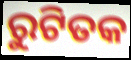
ରୁଟିତକ